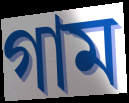
গাম